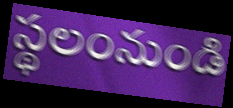
స్థలంనుండి